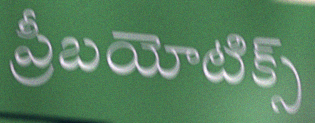
ప్రీబయోటిక్స్